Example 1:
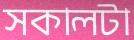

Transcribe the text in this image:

সকালটা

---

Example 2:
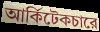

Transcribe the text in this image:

আর্কিটেকচারে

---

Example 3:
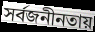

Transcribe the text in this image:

সর্বজনীনতায়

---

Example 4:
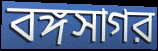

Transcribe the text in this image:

বঙ্গসাগর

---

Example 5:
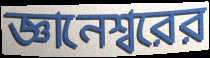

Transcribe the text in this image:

জ্ঞানেশ্বরের